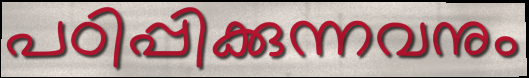
പഠിപ്പിക്കുന്നവനും